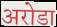
अरोडा